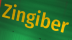
Zingiber